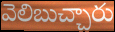
వెలిబుచ్చారు